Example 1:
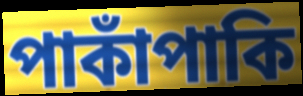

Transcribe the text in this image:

পাকাঁপাকি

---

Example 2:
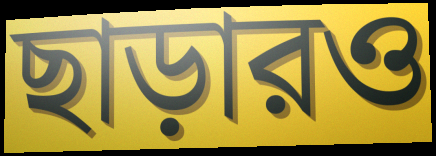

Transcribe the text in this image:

ছাড়ারও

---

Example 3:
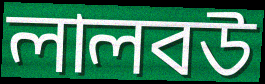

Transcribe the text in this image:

লালবউ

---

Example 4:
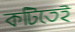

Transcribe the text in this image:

কটিতেই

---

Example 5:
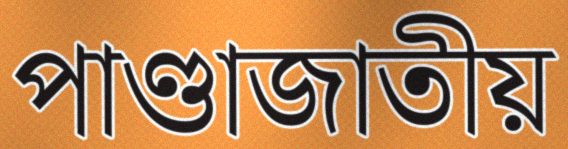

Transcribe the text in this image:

পাণ্ডাজাতীয়